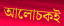
আলোচকই